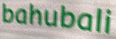
bahubali